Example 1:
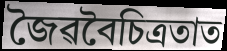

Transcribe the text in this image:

জৈৱবৈচিত্ৰতাত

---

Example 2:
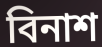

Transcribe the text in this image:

বিনাশ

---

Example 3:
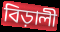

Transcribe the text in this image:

বিড়ালী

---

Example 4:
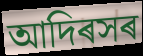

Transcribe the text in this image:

আদিৰসৰ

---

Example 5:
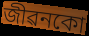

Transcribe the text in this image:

জীৱনকো